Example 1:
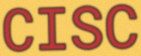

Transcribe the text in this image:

CISC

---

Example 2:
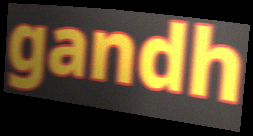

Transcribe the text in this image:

gandh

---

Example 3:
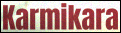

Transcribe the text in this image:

Karmikara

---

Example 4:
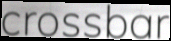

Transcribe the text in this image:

crossbar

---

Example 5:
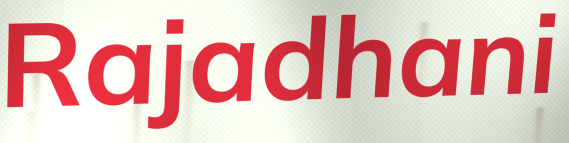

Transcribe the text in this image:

Rajadhani